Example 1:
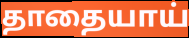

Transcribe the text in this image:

தாதையாய்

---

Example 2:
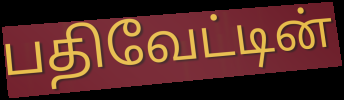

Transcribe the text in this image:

பதிவேட்டின்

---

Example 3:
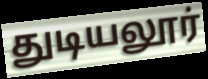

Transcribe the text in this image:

துடியலூர்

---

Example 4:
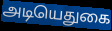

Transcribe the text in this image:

அடியெதுகை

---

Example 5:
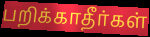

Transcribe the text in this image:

பறிக்காதீர்கள்